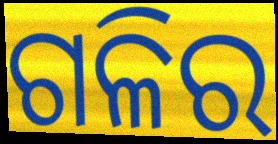
ଗଳିର